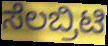
ಸೆಲಬ್ರಿಟಿ